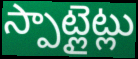
స్పాట్లైట్లు